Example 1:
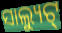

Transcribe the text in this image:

ସାଲ୍ୟୁଟ୍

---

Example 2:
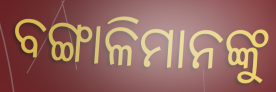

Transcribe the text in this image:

ବଙ୍ଗାଳିମାନଙ୍କୁ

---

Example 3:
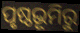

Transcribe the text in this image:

ପୃଷ୍ଠଭୂମିରୁ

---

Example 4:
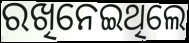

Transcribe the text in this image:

ରଖିନେଇଥିଲେ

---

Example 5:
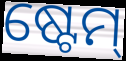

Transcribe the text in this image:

ଷ୍ଟେମ୍